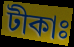
টীকাঃ